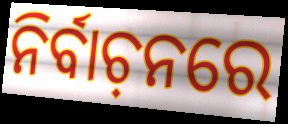
ନିର୍ବାଚ଼ନରେ